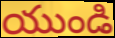
యుండి